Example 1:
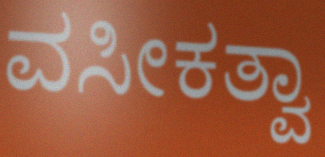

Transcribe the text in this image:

ವಸೀಕತ್ವಾ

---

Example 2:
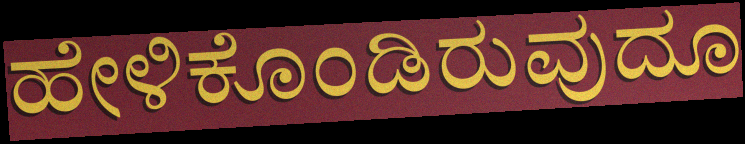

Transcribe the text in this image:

ಹೇಳಿಕೊಂಡಿರುವುದೂ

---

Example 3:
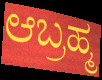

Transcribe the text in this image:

ಆಬ್ರಹ್ಮ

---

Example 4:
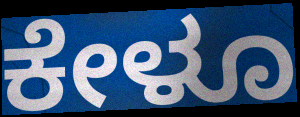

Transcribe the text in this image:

ಕೇಳೂ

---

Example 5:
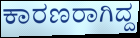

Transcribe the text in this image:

ಕಾರಣರಾಗಿದ್ದ